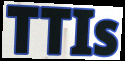
TTIs